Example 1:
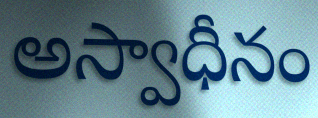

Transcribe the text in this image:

అస్వాధీనం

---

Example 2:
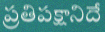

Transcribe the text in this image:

ప్రతిపక్షానిదే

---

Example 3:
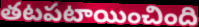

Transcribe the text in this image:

తటపటాయించింది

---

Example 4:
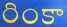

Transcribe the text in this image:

రింకా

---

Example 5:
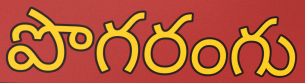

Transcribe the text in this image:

పొగరంగు